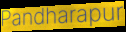
Pandharapur